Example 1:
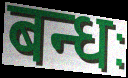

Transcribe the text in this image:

बन्धः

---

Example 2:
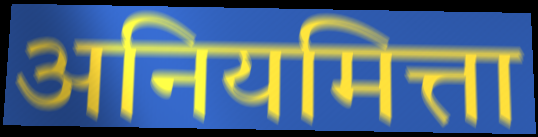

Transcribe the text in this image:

अनियमित्ता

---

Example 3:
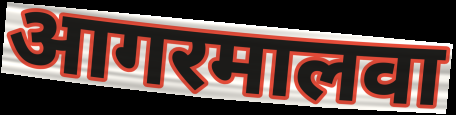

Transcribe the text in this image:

आगरमालवा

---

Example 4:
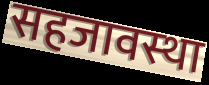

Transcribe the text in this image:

सहजावस्था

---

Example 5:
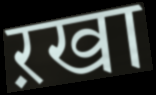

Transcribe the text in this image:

ऱखा